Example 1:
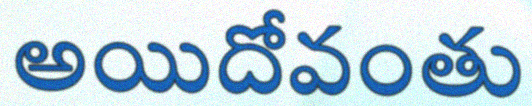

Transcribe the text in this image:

అయిదోవంతు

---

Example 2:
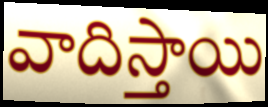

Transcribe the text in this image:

వాదిస్తాయి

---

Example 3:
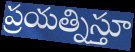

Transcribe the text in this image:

ప్రయత్నిస్తూ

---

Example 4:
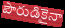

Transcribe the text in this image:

పౌరుడికైనా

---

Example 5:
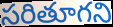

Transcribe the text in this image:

సరితూగని